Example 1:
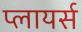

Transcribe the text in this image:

प्लायर्स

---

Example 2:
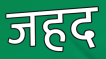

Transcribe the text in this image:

जहद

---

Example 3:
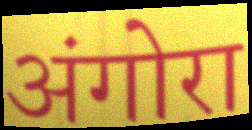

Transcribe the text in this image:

अंगोरा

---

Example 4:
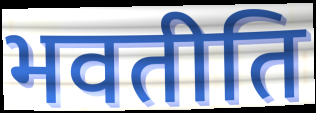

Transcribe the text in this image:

भवतीति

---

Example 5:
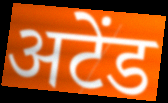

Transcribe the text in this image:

अटेंड